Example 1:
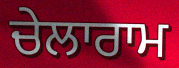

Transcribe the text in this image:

ਚੇਲਾਰਾਮ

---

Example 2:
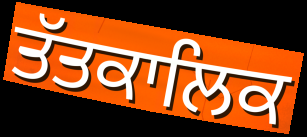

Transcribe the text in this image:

ਤੱਤਕਾਲਿਕ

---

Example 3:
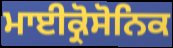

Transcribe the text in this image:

ਮਾਈਕ੍ਰੋਸੋਨਿਕ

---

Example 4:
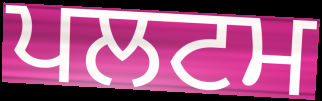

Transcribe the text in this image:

ਪਲਟਮ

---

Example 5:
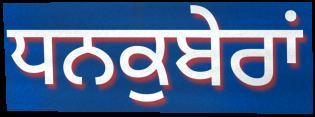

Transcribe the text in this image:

ਧਨਕੁਬੇਰਾਂ